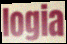
logia